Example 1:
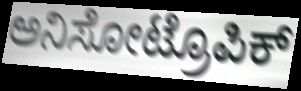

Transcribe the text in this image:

ಅನಿಸೋಟ್ರೊಪಿಕ್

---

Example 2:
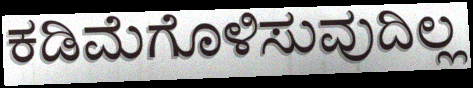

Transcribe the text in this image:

ಕಡಿಮೆಗೊಳಿಸುವುದಿಲ್ಲ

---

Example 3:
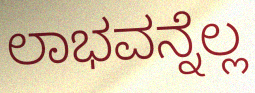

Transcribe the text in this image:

ಲಾಭವನ್ನೆಲ್ಲ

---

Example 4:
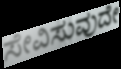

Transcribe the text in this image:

ಸೇವಿಸುವುದೇ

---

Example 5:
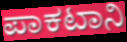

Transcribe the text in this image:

ಪಾಕಟಾನಿ